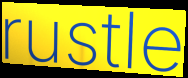
rustle